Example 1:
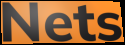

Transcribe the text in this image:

Nets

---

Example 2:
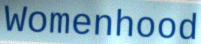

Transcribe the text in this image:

Womenhood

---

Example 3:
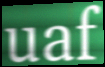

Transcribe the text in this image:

uaf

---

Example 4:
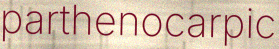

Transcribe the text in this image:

parthenocarpic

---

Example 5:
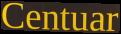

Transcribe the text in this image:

Centuar